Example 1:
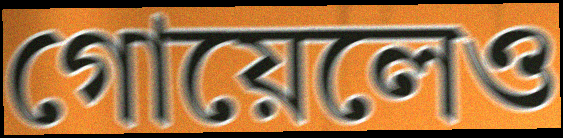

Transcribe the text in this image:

গোয়েলেও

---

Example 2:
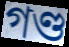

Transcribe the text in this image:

গণ্ড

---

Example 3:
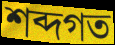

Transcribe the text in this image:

শব্দগত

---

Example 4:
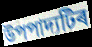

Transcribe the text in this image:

উপপাদ্যটিৰ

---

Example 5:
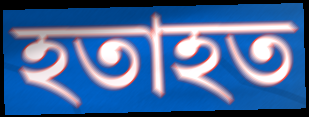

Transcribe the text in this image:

হতাহত